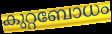
കുറ്റബോധം